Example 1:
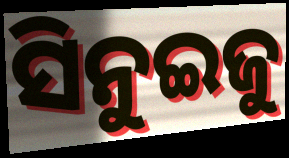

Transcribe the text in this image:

ସିନୁଇଜୁ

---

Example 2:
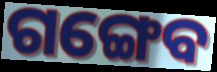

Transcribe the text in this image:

ଗଙ୍ଗେବ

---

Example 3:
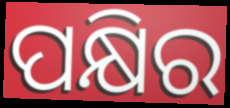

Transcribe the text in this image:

ପକ୍ଷିର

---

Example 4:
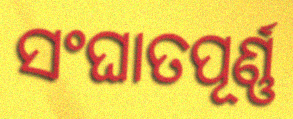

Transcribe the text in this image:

ସଂଘାତପୂର୍ଣ୍ଣ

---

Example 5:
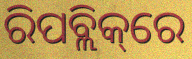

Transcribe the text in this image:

ରିପବ୍ଲିକ୍‌ରେ